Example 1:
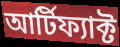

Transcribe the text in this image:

আর্টিফ্যাক্ট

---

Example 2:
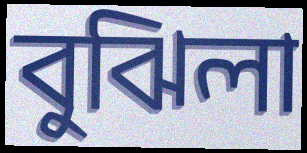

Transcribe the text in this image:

বুঝিলা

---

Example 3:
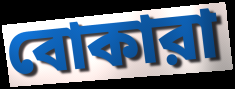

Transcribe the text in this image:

বোকারা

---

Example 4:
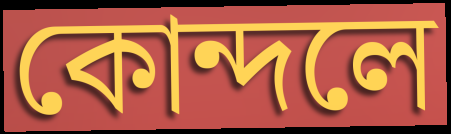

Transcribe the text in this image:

কোন্দলে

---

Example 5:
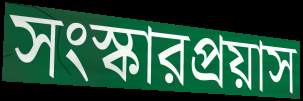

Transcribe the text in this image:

সংস্কারপ্রয়াস